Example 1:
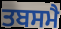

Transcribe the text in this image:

ਤਬਸਮੈ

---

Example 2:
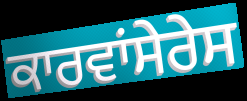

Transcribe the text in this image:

ਕਾਰਵਾਂਸੇਰੇਸ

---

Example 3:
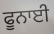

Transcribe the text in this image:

ਫੂਨਾਈ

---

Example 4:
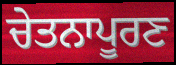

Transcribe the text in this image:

ਚੇਤਨਾਪੂਰਣ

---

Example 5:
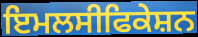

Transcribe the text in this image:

ਇਮਲਸੀਫਿਕੇਸ਼ਨ